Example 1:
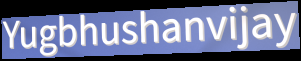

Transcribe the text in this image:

Yugbhushanvijay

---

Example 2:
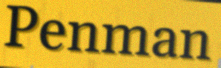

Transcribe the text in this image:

Penman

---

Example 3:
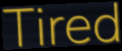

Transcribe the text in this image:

Tired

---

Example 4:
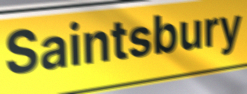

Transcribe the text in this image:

Saintsbury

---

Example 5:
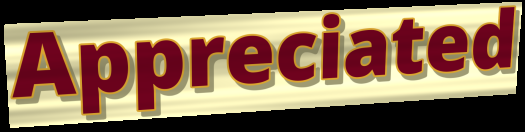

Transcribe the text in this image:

Appreciated